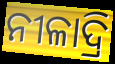
ନୀଳାଦ୍ରି